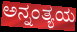
ಅನ್ನಂತ್ಯಯ